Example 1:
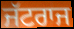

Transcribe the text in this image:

ਜੱਟਰਾਜ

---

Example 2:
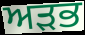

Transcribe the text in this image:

ਅੜਭ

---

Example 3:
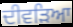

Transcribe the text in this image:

ਦੀਵੜਿਆ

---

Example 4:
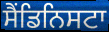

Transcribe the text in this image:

ਸੈਂਡਿਨਿਸਟਾ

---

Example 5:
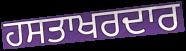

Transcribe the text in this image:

ਹਸਤਾਖਰਦਾਰ